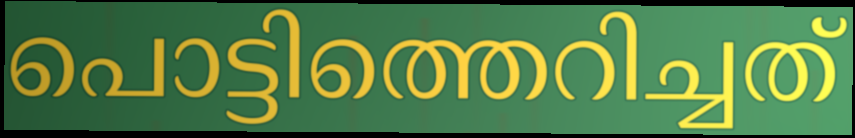
പൊട്ടിത്തെറിച്ചത്